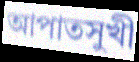
আপাতসুখী